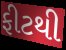
ફીટથી